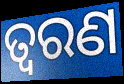
ତ୍ୱରଣ